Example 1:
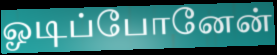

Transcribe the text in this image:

ஓடிப்போனேன்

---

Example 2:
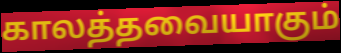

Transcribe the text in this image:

காலத்தவையாகும்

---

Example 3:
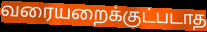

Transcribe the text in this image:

வரையறைக்குட்படாத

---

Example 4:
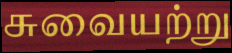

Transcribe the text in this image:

சுவையற்று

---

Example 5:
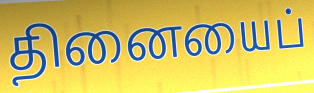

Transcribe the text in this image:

தினையைப்